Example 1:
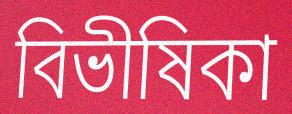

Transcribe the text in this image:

বিভীষিকা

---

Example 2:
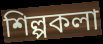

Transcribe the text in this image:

শিল্পকলা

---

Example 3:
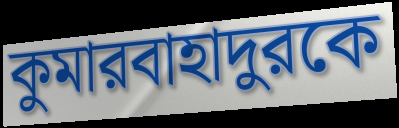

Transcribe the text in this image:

কুমারবাহাদুরকে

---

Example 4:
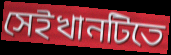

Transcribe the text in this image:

সেইখানটিতে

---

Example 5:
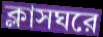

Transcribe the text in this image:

ক্লাসঘরে